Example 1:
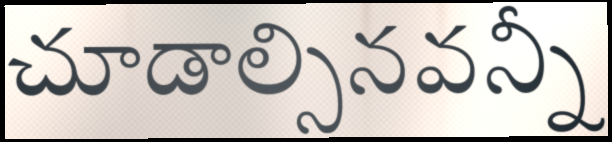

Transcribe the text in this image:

చూడాల్సినవన్నీ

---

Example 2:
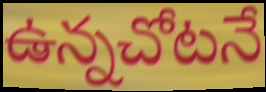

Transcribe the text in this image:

ఉన్నచోటనే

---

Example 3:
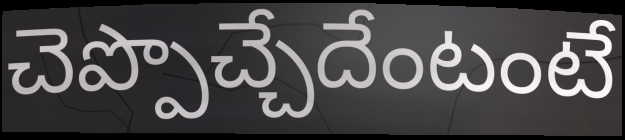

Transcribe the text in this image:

చెప్పొచ్చేదేంటంటే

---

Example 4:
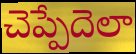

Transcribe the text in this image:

చెప్పేదెలా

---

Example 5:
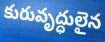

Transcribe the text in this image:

కురువృద్ధులైన